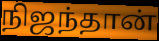
நிஜந்தான்